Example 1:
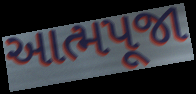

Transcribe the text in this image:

આત્મપૂજા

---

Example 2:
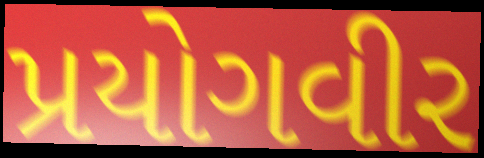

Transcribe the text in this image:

પ્રયોગવીર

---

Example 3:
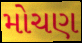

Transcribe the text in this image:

મોચણ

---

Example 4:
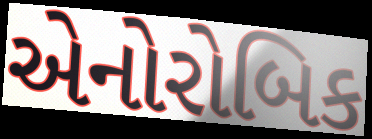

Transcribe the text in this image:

એનોરોબિક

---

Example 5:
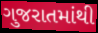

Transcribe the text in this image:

ગુજરાતમાંથી